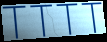
TTTT